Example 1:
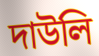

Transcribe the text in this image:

দাউলি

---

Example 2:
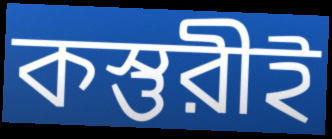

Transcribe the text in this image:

কস্তুরীই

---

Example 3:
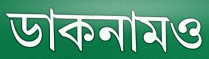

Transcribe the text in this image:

ডাকনামও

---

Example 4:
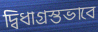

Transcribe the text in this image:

দ্বিধাগ্রস্তভাবে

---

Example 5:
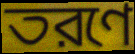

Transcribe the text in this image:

তরণে